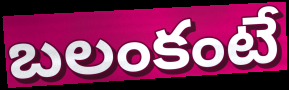
బలంకంటే